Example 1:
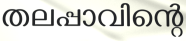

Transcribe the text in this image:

തലപ്പാവിന്റെ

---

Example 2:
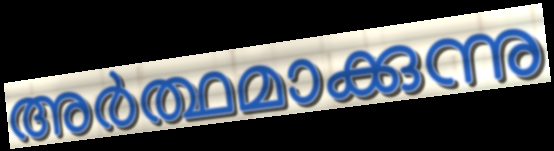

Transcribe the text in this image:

അർത്ഥമാക്കുന്നു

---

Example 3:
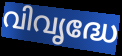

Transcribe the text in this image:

വിവൃദ്ധേ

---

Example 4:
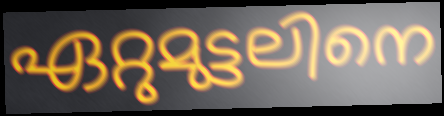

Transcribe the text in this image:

ഏറ്റുമുട്ടലിനെ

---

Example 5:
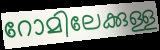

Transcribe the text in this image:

റോമിലേക്കുള്ള